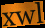
xwl